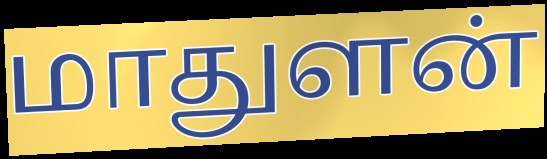
மாதுளன்